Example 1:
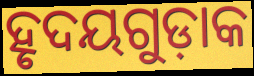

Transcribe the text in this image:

ହୃଦୟଗୁଡ଼ାକ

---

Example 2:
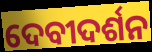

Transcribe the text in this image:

ଦେବୀଦର୍ଶନ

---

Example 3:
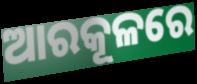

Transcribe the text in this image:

ଆରକୂଳରେ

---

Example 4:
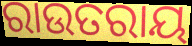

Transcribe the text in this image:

ରାଉତରାୟ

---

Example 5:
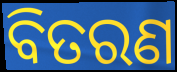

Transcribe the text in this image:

ବିତରଣ